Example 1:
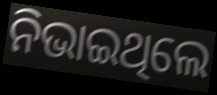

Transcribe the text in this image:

ନିଭାଇଥିଲେ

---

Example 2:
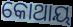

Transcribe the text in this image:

କୋଥାୟ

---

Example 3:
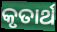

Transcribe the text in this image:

କୃତାର୍ଥ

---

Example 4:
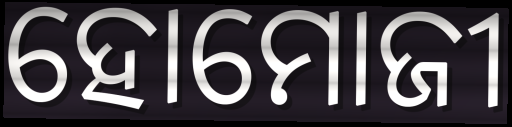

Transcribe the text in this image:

ହୋମୋଜୀ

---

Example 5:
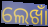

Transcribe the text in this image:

ଲେଖାଁ